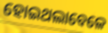
ହୋଇଥଲାବେଳେ